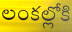
లంకల్లోకి